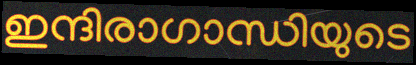
ഇന്ദിരാഗാന്ധിയുടെ